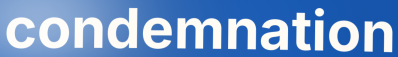
condemnation